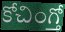
కోచింగ్తో